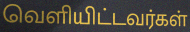
வெளியிட்டவர்கள்